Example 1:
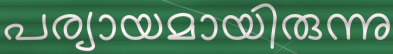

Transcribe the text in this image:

പര്യായമായിരുന്നു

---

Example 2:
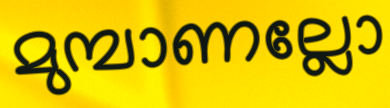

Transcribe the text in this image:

മുമ്പാണല്ലോ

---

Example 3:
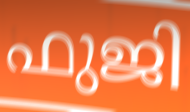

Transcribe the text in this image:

ഫുജി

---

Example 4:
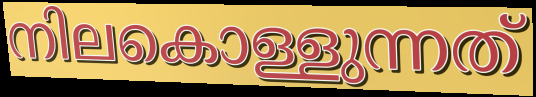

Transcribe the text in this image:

നിലകൊള്ളുന്നത്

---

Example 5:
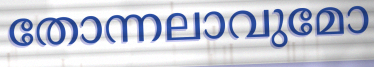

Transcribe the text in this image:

തോന്നലാവുമോ